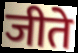
जीते